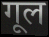
गूल